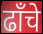
ढाँचे